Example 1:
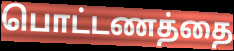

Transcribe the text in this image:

பொட்டணத்தை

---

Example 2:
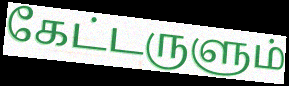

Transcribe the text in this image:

கேட்டருளும்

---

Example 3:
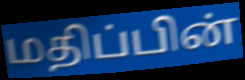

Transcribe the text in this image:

மதிப்பின்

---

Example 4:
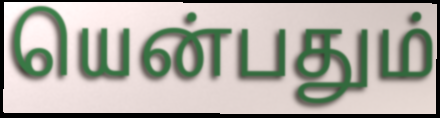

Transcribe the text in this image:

யென்பதும்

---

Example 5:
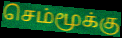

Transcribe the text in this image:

செம்மூக்கு